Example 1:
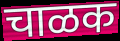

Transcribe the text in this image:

चाळक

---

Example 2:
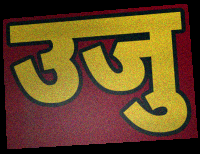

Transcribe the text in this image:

उजु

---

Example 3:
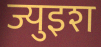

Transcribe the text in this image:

ज्युइश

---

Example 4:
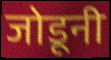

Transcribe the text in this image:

जोडूनी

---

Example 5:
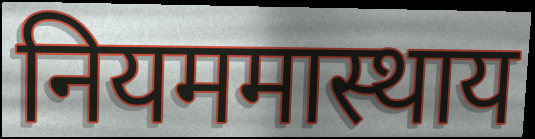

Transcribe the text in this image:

नियममास्थाय